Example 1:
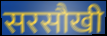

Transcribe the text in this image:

सरसौखी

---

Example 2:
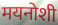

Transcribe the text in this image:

मयनोशी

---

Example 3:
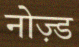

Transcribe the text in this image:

नोज़्ड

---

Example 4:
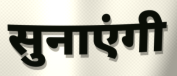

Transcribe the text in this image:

सुनाएंगी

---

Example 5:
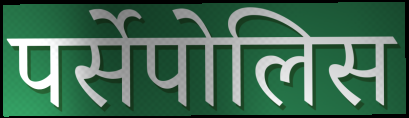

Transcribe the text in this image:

पर्सेपोलिस